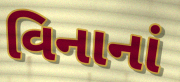
વિનાનાં